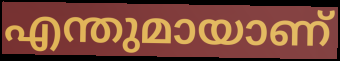
എന്തുമായാണ്